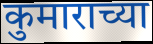
कुमाराच्या